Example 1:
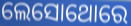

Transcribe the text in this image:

ଲେସୋଥୋରେ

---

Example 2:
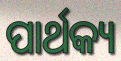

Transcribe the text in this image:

ପାର୍ଥକ୍ୟ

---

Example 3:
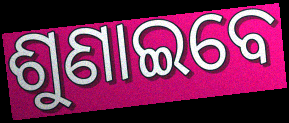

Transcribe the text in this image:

ଶୁଣାଇବେ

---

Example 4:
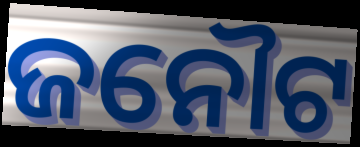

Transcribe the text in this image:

ଜନୌଟ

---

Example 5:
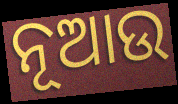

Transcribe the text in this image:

ନୂଆଉ